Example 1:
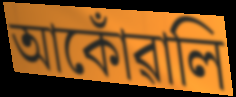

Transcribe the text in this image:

আকোঁৱালি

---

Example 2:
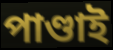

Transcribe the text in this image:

পাণ্ডাই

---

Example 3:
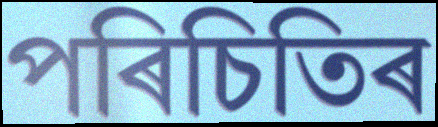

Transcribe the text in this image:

পৰিচিতিৰ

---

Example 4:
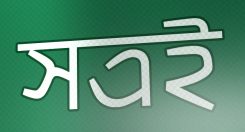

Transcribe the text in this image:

সত্ৰই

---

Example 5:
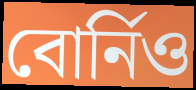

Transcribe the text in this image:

বোৰ্নিও